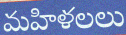
మహిళలలు